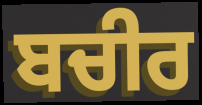
ਬਚੀਰ